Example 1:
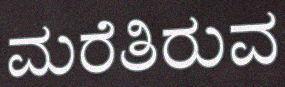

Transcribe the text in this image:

ಮರೆತಿರುವ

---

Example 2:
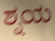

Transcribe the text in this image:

ಶ್ನಯ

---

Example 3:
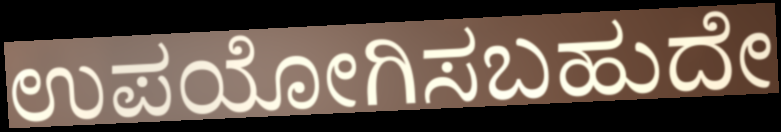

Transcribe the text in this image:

ಉಪಯೋಗಿಸಬಹುದೇ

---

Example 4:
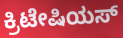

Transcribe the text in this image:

ಕ್ರಿಟೇಷಿಯಸ್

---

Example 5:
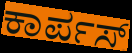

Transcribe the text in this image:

ಕಾರ್ಪಸ್